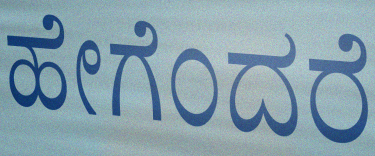
ಹೇಗೆಂದರೆ